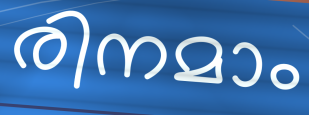
രിനമാം